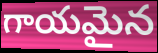
గాయమైన